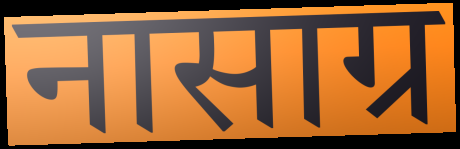
नासाग्र